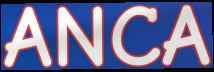
ANCA